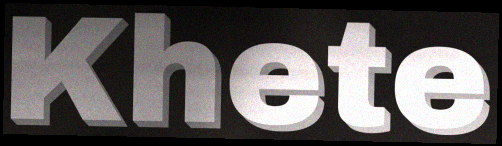
Khete